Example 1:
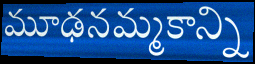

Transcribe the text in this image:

మూఢనమ్మకాన్ని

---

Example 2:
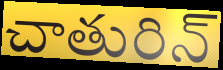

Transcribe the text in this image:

చాతురిన్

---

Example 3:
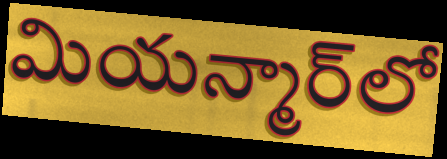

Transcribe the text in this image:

మియన్మార్‌లో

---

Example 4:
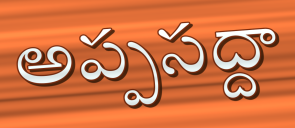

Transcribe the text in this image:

అప్పసద్దా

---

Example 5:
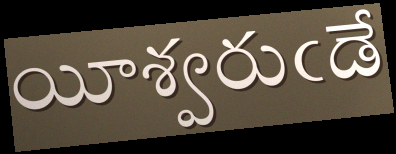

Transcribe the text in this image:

యీశ్వరుఁడే